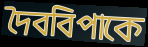
দৈববিপাকে